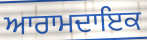
ਆਰਾਮਦਾਇਕ